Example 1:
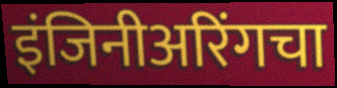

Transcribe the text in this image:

इंजिनीअरिंगचा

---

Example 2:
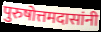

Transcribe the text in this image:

पुरुषोत्तमदासांनी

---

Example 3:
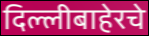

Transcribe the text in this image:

दिल्लीबाहेरचे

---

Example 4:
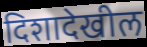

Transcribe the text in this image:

दिशादेखील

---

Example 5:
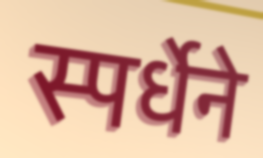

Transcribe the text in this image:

स्पर्धेने